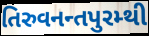
તિરુવનન્તપુરમ્થી